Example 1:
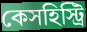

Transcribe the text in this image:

কেসহিস্ট্রি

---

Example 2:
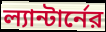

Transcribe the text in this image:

ল্যান্টার্নের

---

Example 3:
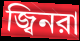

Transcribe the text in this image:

জ্বিনরা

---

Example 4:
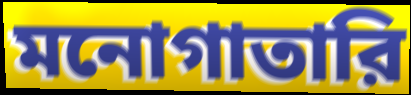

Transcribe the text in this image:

মনোগাতারি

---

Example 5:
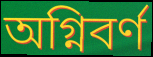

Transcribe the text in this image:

অগ্নিবর্ণ